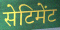
सेटिमेंट